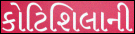
કોટિશિલાની